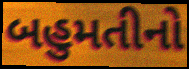
બહુમતીનો